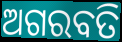
ଅଗରବତି